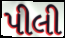
પીલી